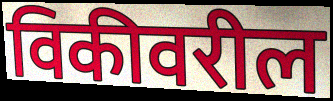
विकीवरील